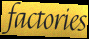
factories